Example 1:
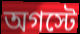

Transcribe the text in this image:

অগস্টে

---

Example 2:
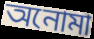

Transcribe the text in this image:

অনোমা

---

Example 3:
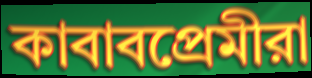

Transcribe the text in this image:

কাবাবপ্রেমীরা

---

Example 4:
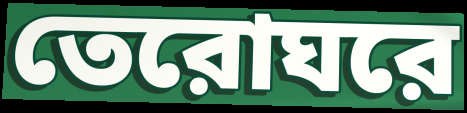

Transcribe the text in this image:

তেরোঘরে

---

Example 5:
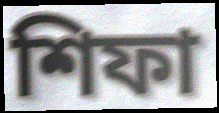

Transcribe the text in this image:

শিফা